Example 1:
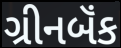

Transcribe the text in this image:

ગ્રીનબૅંક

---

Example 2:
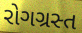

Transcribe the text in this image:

રોગગ્રસ્ત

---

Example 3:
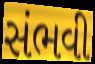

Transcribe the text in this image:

સંભવી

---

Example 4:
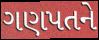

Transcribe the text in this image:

ગણપતને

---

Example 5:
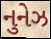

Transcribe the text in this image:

નુનેઝ